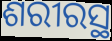
ଶରୀରସ୍ଥ